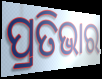
ପ୍ରତିଭାର